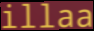
illaa